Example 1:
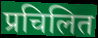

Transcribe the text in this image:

प्रचिलित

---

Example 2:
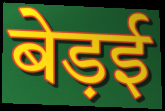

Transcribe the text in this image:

बेड़ई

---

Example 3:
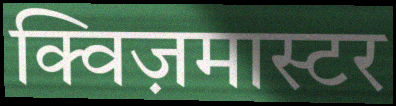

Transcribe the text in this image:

क्विज़मास्टर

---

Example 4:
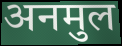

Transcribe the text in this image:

अनमुल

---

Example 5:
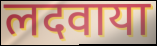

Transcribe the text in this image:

लदवाया